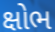
ક્ષોભ